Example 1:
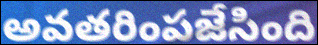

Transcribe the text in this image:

అవతరింపజేసింది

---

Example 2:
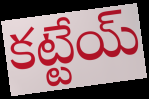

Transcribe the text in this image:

కట్టేయ్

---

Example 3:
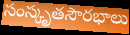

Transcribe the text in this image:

సంస్కృతసౌరభాలు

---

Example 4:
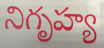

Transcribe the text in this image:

నిగృహ్య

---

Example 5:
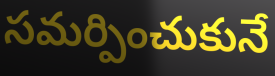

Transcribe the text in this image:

సమర్పించుకునే